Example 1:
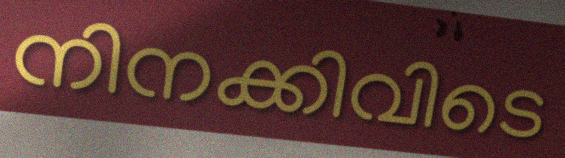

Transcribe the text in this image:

നിനക്കിവിടെ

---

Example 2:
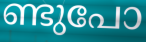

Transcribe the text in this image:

ണ്ടുപോ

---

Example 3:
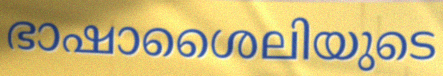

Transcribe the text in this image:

ഭാഷാശൈലിയുടെ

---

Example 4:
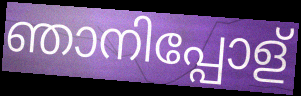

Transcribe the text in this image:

ഞാനിപ്പോള്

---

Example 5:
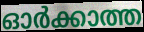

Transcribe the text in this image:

ഓർക്കാത്ത